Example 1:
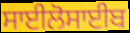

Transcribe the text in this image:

ਸਾਈਲੋਸਾਈਬ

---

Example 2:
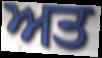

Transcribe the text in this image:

ਅਤ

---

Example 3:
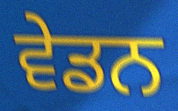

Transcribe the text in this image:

ਵੇਡਨ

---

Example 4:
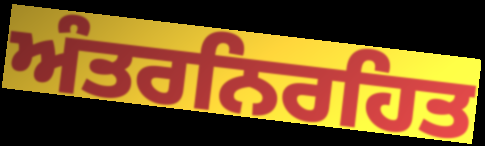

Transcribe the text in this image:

ਅੰਤਰਨਿਰਹਿਤ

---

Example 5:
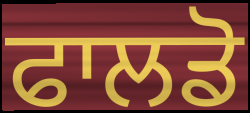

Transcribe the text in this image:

ਫਾਲਡੋ